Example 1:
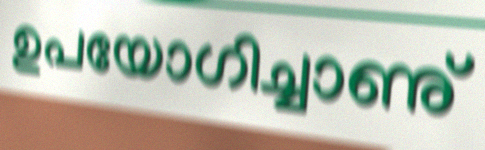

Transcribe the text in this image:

ഉപയോഗിച്ചാണു്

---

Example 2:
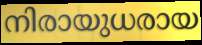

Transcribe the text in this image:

നിരായുധരായ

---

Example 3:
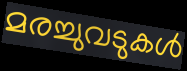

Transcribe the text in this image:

മരച്ചുവടുകൾ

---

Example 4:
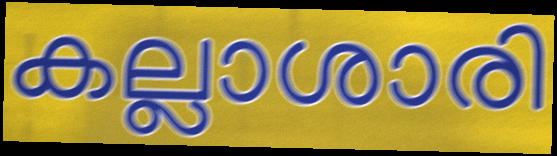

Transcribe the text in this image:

കല്ലാശാരി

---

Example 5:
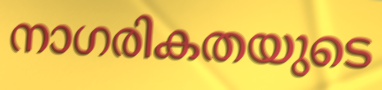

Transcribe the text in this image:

നാഗരികതയുടെ